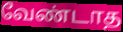
வேண்டாத